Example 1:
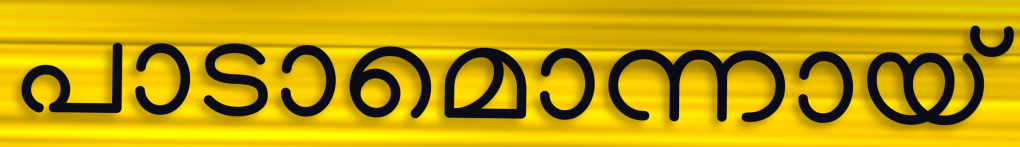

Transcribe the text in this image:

പാടാമൊന്നായ്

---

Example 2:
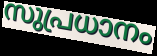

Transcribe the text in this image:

സുപ്രധാനം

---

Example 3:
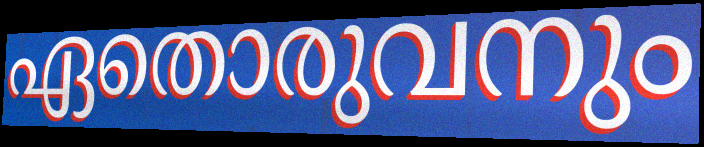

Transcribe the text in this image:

ഏതൊരുവനും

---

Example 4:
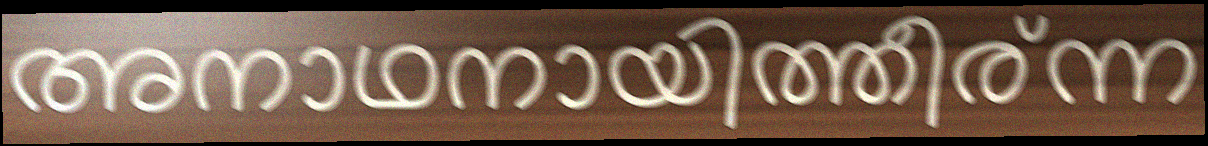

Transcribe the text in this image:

അനാഥനായിത്തീര്ന്ന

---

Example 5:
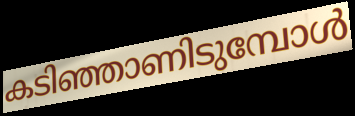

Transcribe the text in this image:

കടിഞ്ഞാണിടുമ്പോൾ